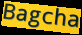
Bagcha